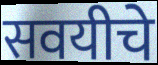
सवयीचे